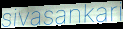
sivasankari